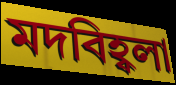
মদবিহ্বলা